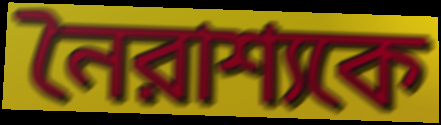
নৈরাশ্যকে